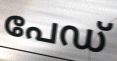
പേഡ്